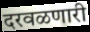
दरवळणारी